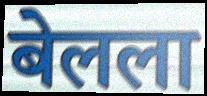
बेलला